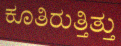
ಕೂತಿರುತ್ತಿತ್ತು